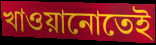
খাওয়ানোতেই